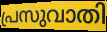
പ്രസുവാതി